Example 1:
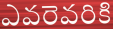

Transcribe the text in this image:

ఎవరెవరికి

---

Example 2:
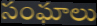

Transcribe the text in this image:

సంఘాలు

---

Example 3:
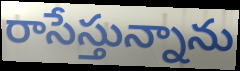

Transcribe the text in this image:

రాసేస్తున్నాను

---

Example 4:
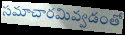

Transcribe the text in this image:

సమాచారమివ్వడంతో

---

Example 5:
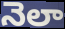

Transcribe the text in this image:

నెలా